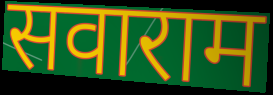
सवाराम